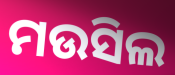
ମଉସିଲ